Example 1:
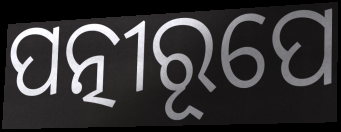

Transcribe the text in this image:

ପତ୍ନୀରୂପେ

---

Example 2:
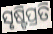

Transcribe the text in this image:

ସୃଷ୍ଟିପ୍ରତି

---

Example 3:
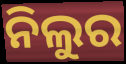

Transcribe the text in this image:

ନିଲୁର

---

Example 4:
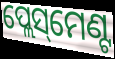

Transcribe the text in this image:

ପ୍ଲେସ୍‌ମେଣ୍ଟ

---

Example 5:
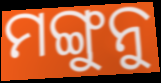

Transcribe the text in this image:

ମଙ୍ଗୁନୁ